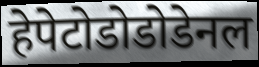
हेपेटोडोडोडेनल